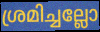
ശ്രമിച്ചല്ലോ